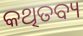
କଥିତବ୍ୟ